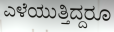
ಎಳೆಯುತ್ತಿದ್ದರೂ